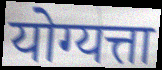
योग्यत्ता